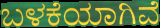
ಬಳಕೆಯಾಗಿವೆ